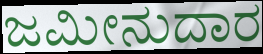
ಜಮೀನುದಾರ